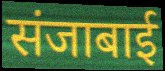
संजाबाई